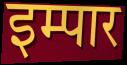
इम्पार